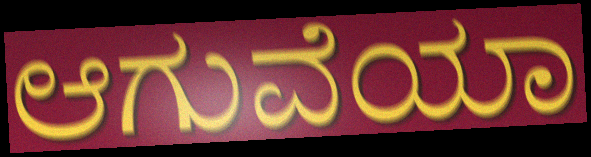
ಆಗುವೆಯಾ